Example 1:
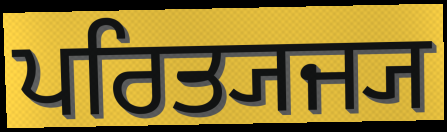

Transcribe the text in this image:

ਪਰਿਤ੍ਯਜ੍ਯ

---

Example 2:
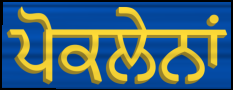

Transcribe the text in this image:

ਪੋਕਲੇਨਾਂ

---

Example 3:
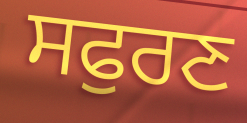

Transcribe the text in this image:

ਸਫੁਰਣ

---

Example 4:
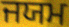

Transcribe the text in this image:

ਜਯਮ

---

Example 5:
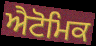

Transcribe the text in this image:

ਐਟੋਮਿਕ